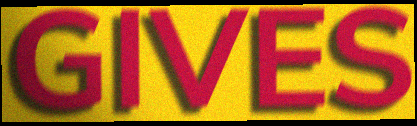
GIVES